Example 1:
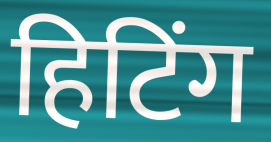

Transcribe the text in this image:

हिटिंग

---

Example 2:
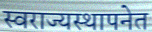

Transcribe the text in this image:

स्वराज्यस्थापनेत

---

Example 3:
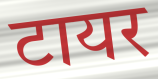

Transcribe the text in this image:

टायर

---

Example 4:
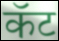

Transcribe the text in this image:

कॅट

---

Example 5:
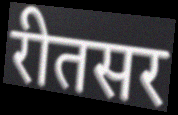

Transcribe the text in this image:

रीतसर